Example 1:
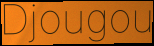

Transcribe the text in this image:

Djougou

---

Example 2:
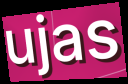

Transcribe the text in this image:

ujas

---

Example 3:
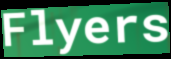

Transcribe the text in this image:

Flyers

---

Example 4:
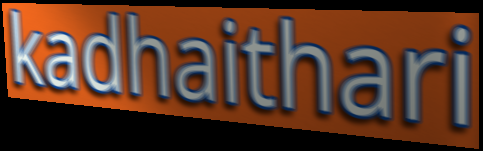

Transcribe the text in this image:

kadhaithari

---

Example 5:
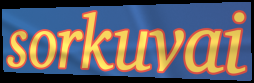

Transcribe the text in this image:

sorkuvai